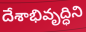
దేశాభివృద్ధిని